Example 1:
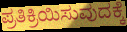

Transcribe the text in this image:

ಪ್ರತಿಕ್ರಿಯಿಸುವುದಕ್ಕೆ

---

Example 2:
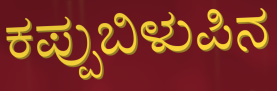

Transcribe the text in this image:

ಕಪ್ಪುಬಿಳುಪಿನ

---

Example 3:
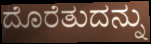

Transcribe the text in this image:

ದೊರೆತುದನ್ನು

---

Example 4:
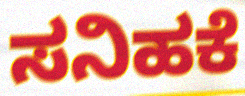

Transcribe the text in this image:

ಸನಿಹಕೆ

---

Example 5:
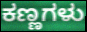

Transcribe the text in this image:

ಕಣ್ಣಗಳು